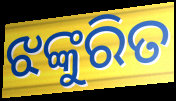
ଝଙ୍କୁରିତ